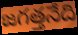
జగత్తనేది